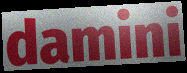
damini